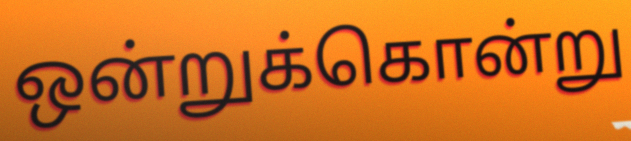
ஒன்றுக்கொன்று